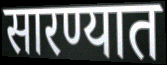
सारण्यात